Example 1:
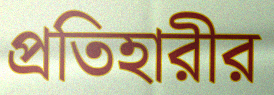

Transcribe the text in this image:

প্রতিহারীর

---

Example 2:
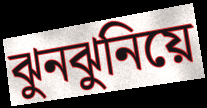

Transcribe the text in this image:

ঝুনঝুনিয়ে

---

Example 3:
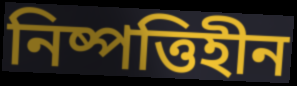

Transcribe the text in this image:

নিষ্পত্তিহীন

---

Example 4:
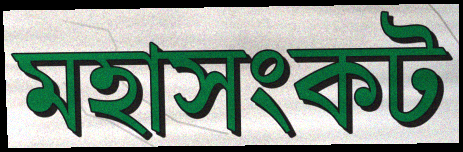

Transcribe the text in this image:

মহাসংকট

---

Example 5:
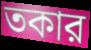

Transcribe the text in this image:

তকার